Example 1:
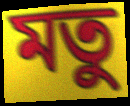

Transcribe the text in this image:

মতু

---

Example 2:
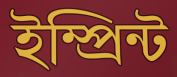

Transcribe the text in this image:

ইম্প্ৰিন্ট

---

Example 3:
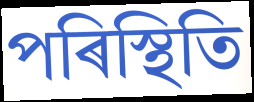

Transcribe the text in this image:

পৰিস্থিতি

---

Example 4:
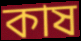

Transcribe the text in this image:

কাষ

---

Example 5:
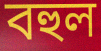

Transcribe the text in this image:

বহুল